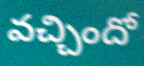
వచ్చిందో